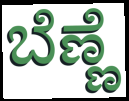
ಬೆಣ್ಣೆ